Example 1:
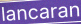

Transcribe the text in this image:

lancaran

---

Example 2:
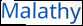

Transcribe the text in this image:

Malathy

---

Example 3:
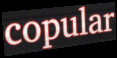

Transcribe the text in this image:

copular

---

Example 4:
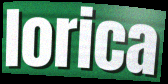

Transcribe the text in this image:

lorica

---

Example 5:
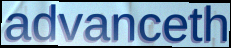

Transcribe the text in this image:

advanceth